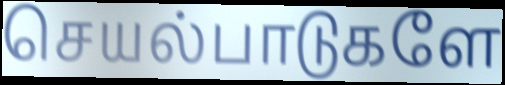
செயல்பாடுகளே